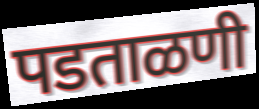
पडताळणी